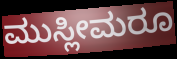
ಮುಸ್ಲೀಮರೂ